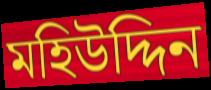
মহিউদ্দিন